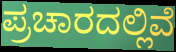
ಪ್ರಚಾರದಲ್ಲಿವೆ